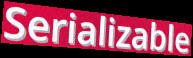
Serializable